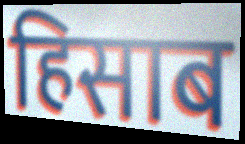
हिसाब